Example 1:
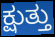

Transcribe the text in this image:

ಕ್ಷುತ್ತು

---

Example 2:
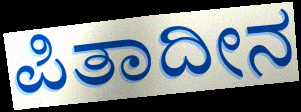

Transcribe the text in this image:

ಪಿತಾದೀನ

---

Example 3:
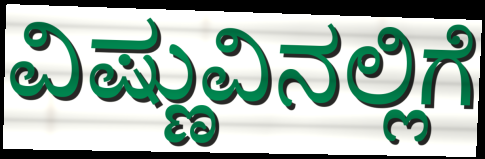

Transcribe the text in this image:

ವಿಷ್ಣುವಿನಲ್ಲಿಗೆ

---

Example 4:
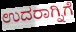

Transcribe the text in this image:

ಉದರಾಗ್ನಿಗೆ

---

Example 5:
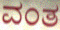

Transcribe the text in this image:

ವಂತ